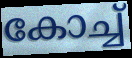
കോച്ച്